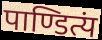
पाण्डित्यं